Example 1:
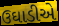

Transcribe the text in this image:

ઉઘાડીએ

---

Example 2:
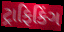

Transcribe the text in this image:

ટ્રાફિકિંગ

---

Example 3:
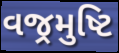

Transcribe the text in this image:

વજ્રમુષ્ટિ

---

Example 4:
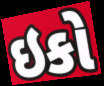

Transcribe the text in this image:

ઇકો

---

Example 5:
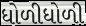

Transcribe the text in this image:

ધોળીધોળી